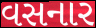
વસનાર